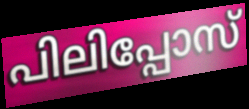
പിലിപ്പോസ്